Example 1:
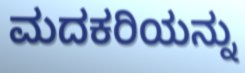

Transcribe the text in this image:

ಮದಕರಿಯನ್ನು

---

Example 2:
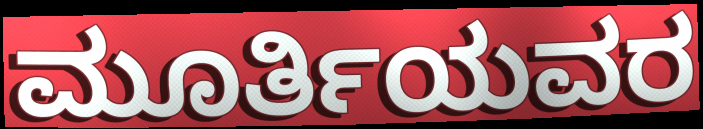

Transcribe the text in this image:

ಮೂರ್ತಿಯವರ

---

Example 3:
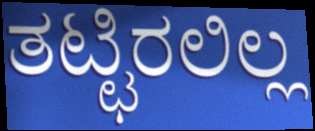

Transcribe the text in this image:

ತಟ್ಟಿರಲಿಲ್ಲ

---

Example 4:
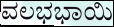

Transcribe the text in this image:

ವಲಭಭಾಯಿ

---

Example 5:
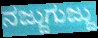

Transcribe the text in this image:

ನಜ್ಜುಗುಜ್ಜು